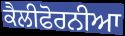
ਕੈਲੀਫੋਰਨੀਆ